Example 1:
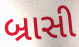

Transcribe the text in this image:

બ્રાસી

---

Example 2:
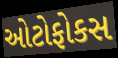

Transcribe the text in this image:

ઓટોફોકસ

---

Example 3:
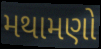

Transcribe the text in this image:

મથામણો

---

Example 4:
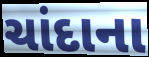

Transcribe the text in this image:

ચાંદાના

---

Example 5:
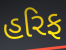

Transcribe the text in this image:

હરિફ